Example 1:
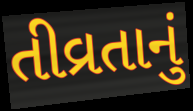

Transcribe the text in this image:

તીવ્રતાનું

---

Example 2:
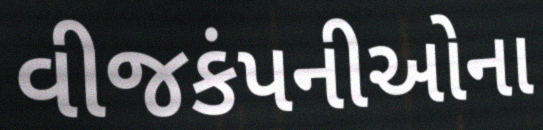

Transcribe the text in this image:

વીજકંપનીઓના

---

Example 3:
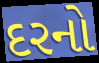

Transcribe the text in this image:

દરનો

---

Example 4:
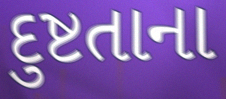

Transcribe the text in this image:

દુષ્ટતાના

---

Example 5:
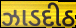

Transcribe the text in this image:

ઝાડદીઠ